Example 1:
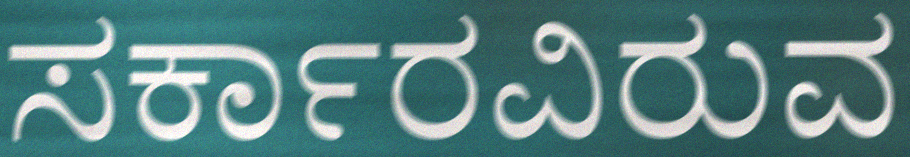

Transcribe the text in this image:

ಸರ್ಕಾರವಿರುವ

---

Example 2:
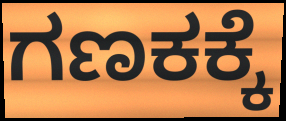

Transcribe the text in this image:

ಗಣಕಕ್ಕೆ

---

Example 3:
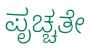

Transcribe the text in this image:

ಪೃಚ್ಚತೇ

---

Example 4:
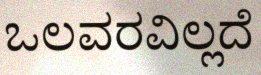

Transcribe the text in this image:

ಒಲವರವಿಲ್ಲದೆ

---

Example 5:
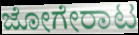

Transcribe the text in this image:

ಜೋಗೇರಾಟ